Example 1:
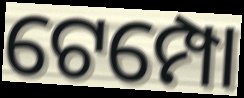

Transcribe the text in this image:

ଟେମ୍ପୋ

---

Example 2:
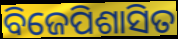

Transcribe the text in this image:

ବିଜେପିଶାସିତ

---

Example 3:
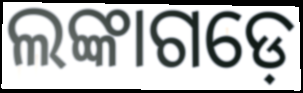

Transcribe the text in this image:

ଲଙ୍କାଗଡ଼େ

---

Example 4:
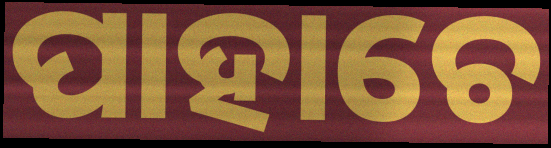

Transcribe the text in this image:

ପାହାଚେ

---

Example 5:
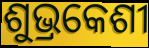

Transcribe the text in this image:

ଶୁଭ୍ରକେଶୀ